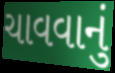
ચાવવાનું